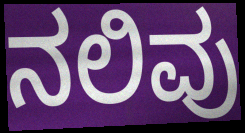
ನಲಿವು